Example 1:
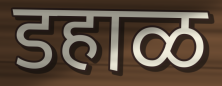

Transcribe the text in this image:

डहाळ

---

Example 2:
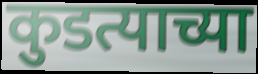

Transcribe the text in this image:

कुडत्याच्या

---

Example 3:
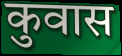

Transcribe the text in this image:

कुवास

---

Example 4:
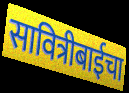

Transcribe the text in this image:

सावित्रीबाईचा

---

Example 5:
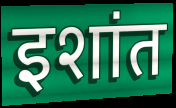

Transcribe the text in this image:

इशांत